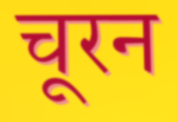
चूरन